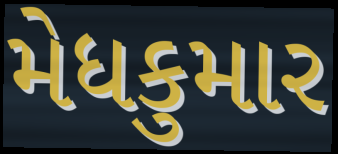
મેધકુમાર